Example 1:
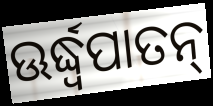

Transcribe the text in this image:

ଊର୍ଦ୍ଧ୍ବପାତନ୍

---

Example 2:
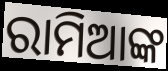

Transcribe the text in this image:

ରାମିଆଙ୍କ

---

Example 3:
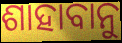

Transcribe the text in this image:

ଶାହାବାନୁ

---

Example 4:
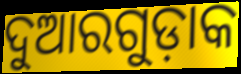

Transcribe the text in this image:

ଦୁଆରଗୁଡ଼ାକ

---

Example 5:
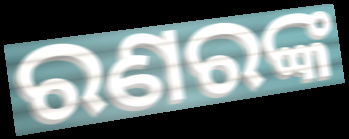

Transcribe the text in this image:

ରଣରଙ୍କ